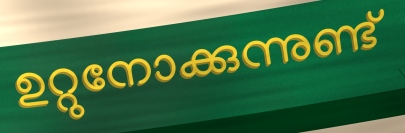
ഉറ്റുനോക്കുന്നുണ്ട്